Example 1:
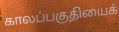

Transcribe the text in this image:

காலப்பகுதியைக்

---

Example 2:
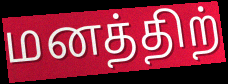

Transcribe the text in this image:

மனத்திற்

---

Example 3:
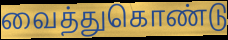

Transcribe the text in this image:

வைத்துகொண்டு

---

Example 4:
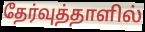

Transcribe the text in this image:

தேர்வுத்தாளில்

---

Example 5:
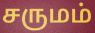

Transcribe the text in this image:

சருமம்